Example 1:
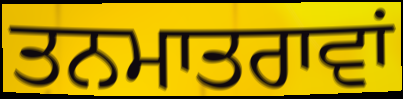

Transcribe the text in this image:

ਤਨਮਾਤਰਾਵਾਂ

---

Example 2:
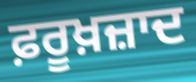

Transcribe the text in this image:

ਫ਼ਰੂਖ਼ਜ਼ਾਦ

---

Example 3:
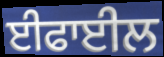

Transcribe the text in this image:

ਈਫਾਈਲ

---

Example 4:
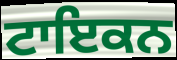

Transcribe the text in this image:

ਟਾਇਕਨ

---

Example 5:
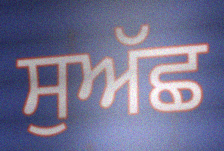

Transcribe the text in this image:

ਸੁਅੱਛ